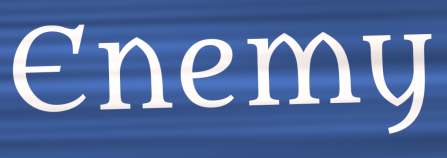
Enemy